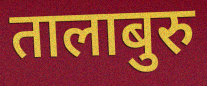
तालाबुरु